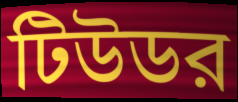
টিউডর